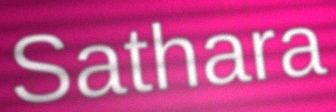
Sathara